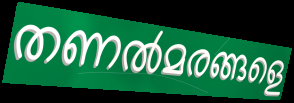
തണൽമരങ്ങളെ